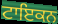
ਟਾਇਕਨ